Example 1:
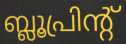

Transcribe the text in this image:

ബ്ലൂപ്രിന്റ്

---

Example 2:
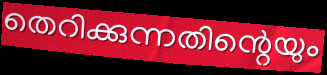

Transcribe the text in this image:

തെറിക്കുന്നതിന്റെയും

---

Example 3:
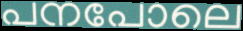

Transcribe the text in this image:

പനപോലെ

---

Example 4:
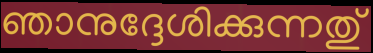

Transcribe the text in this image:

ഞാനുദ്ദേശിക്കുന്നതു്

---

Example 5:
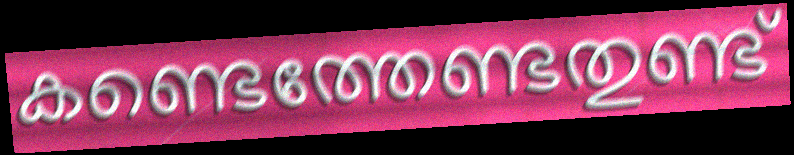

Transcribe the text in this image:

കണ്ടെത്തേണ്ടതുണ്ട്